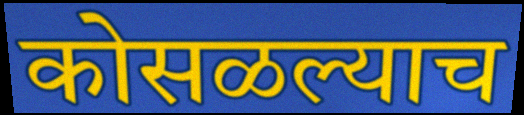
कोसळल्याच